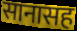
सानासह